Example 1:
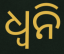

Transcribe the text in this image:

ଧ୍ବନି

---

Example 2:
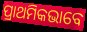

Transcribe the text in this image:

ପ୍ରାଥମିକଭାବେ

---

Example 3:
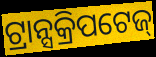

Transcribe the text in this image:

ଟ୍ରାନ୍ସକ୍ରିପଟେଜ୍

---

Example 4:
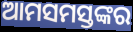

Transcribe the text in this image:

ଆମସମସ୍ତଙ୍କର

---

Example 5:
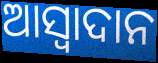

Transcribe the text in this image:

ଆସ୍ୱାଦାନ